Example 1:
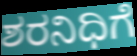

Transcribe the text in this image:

ಶರನಿಧಿಗೆ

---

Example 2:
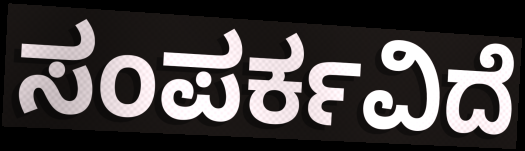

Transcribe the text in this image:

ಸಂಪರ್ಕವಿದೆ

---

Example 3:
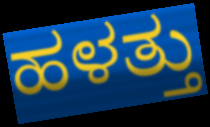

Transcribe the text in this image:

ಹಳತ್ತು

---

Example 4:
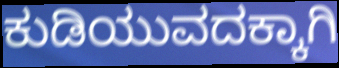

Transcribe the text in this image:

ಕುಡಿಯುವದಕ್ಕಾಗಿ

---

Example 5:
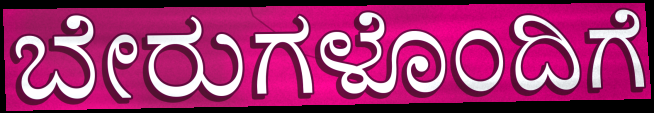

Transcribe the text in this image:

ಬೇರುಗಳೊಂದಿಗೆ